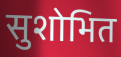
सुशोभित